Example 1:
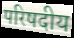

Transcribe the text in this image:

परिषदीय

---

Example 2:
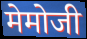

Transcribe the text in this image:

मेमोजी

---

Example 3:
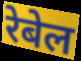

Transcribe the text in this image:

रेबेल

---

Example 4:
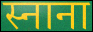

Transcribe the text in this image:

स्नाना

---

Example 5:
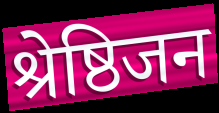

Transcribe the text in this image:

श्रेष्ठिजन